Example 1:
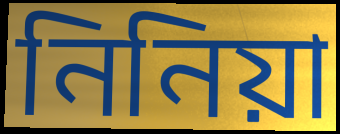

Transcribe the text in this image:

নিনিয়া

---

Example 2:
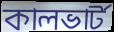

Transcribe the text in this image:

কালভার্ট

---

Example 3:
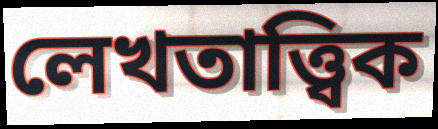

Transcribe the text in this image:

লেখতাত্ত্বিক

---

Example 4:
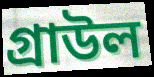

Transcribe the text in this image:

গ্রাউল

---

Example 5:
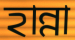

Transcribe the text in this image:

হান্না